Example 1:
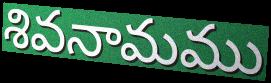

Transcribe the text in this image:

శివనామము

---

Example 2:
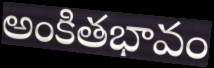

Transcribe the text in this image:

అంకితభావం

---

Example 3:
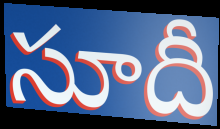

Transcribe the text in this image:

సూదీ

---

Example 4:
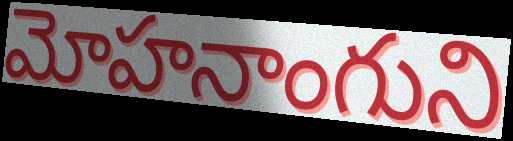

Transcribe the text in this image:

మోహనాంగుని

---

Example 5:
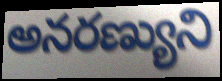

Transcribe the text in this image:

అనరణ్యుని